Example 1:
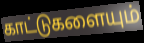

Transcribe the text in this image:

காட்டுகளையும்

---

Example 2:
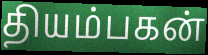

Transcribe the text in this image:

தியம்பகன்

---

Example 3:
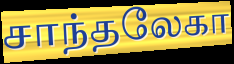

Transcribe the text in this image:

சாந்தலேகா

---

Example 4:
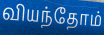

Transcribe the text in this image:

வியந்தோம்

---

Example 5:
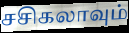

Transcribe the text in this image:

சசிகலாவும்